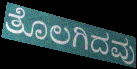
ತೊಲಗಿದವು